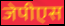
जेपीएस